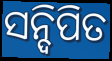
ସନ୍ଦିପିତ